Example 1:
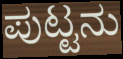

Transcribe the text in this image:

ಪುಟ್ಟನು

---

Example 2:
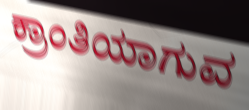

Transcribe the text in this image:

ಕ್ರಾಂತಿಯಾಗುವ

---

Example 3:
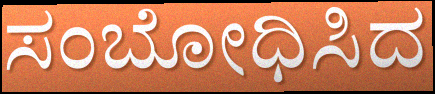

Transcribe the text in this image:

ಸಂಬೋಧಿಸಿದ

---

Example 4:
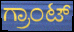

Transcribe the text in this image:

ಗ್ರಾಂಟ್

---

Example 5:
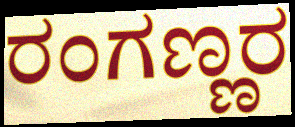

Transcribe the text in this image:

ರಂಗಣ್ಣರ